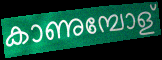
കാണുമ്പോള്